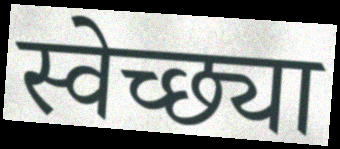
स्वेच्छ्या